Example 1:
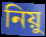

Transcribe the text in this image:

নিয়ু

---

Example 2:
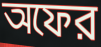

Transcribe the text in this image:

অফের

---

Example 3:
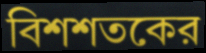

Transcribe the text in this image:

বিশশতকের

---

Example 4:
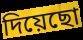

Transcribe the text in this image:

দিয়েছো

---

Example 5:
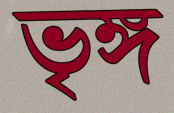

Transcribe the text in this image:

ভৃঙ্গ